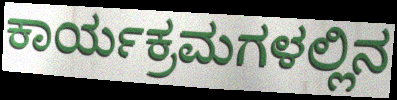
ಕಾರ್ಯಕ್ರಮಗಳಲ್ಲಿನ